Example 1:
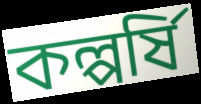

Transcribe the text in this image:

কল্পর্ষি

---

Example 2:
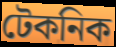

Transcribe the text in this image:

টেকনিক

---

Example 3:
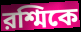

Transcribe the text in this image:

রশ্মিকে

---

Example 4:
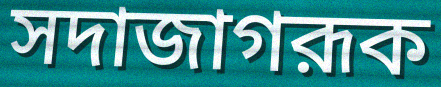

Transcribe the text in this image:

সদাজাগরূক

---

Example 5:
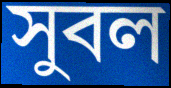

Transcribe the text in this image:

সুবল